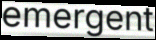
emergent